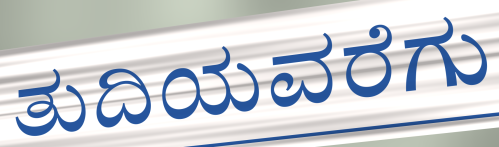
ತುದಿಯವರೆಗು